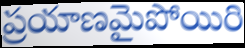
ప్రయాణమైపోయిరి